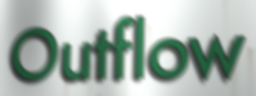
Outflow